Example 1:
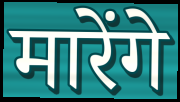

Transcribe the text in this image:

मारेंगे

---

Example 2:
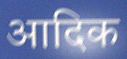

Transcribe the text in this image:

आदिक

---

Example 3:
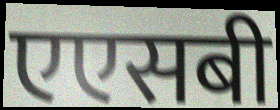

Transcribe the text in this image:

एएसबी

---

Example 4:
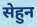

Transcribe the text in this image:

सेहुन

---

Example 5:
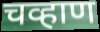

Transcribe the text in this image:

चव्हाण